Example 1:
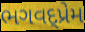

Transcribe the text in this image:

ભગવદ્પ્રેમ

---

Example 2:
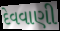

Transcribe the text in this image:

દેવવાણી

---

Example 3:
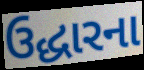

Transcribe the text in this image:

ઉદ્ધારના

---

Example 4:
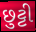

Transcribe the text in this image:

છુટ્ટી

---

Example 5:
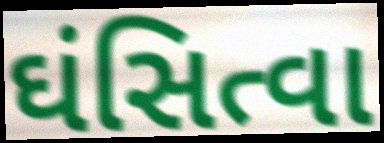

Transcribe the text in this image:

ઘંસિત્વા